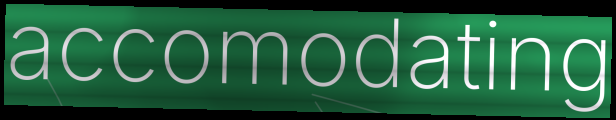
accomodating